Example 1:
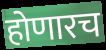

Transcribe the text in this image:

होणारच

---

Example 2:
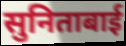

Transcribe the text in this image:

सुनिताबाई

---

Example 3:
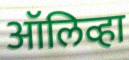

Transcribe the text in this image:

ऑलिव्हा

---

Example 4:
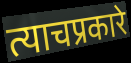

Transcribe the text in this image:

त्याचप्रकारे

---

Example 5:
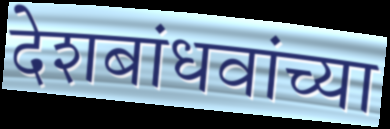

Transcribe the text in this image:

देशबांधवांच्या